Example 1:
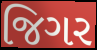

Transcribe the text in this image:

જિગર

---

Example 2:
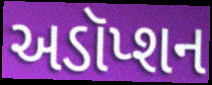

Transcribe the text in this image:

અડૉપ્શન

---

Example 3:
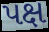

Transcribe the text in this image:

પક્ષ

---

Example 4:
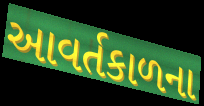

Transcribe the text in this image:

આવર્તકાળના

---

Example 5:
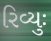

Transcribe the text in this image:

રિવ્યુઃ